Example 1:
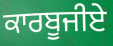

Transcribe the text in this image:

ਕਾਰਬੂਜੀਏ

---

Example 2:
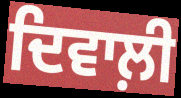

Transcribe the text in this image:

ਦਿਵਾਲ਼ੀ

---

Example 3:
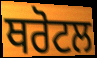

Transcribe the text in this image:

ਥਰੋਟਲ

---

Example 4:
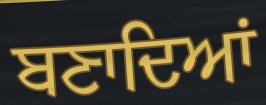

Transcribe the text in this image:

ਬਣਾਦਿਆਂ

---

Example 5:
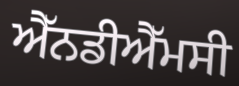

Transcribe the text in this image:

ਐੱਨਡੀਐੱਮਸੀ